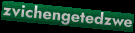
zvichengetedzwe